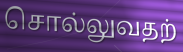
சொல்லுவதற்